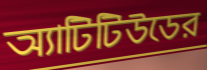
অ্যাটিটিউডের